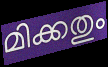
മിക്കതും